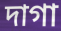
দাগা